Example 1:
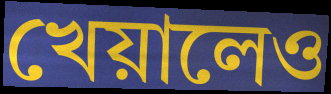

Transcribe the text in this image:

খেয়ালেও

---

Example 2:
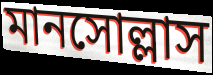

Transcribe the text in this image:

মানসোল্লাস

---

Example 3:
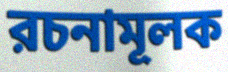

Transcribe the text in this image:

রচনামূলক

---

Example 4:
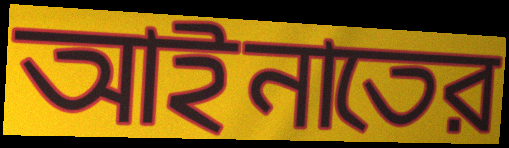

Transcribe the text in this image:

আইনাতের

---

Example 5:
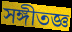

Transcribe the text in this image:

সঙ্গীতজ্ঞ